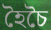
হৈচৈ